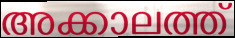
അക്കാലത്ത്